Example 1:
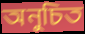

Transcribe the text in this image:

অনুচিত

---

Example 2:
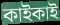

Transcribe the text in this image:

কাইকাই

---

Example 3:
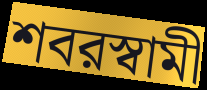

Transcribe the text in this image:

শবরস্বামী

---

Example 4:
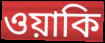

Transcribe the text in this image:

ওয়াকি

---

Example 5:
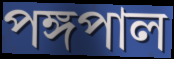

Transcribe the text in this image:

পঙ্গপাল